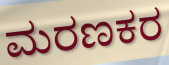
ಮರಣಕರ